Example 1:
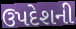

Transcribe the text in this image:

ઉપદેશની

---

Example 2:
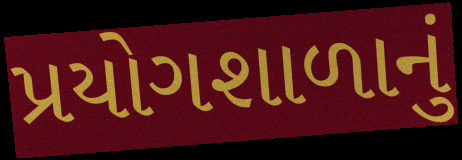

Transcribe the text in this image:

પ્રયોગશાળાનું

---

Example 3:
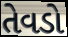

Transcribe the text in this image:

તેવડો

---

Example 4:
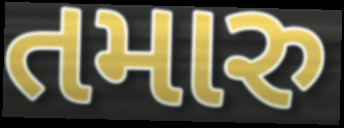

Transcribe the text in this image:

તમારુ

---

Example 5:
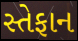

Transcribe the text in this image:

સ્તેફાન